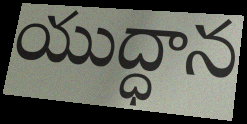
యుద్ధాన